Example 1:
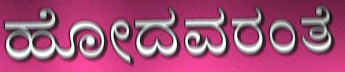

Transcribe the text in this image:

ಹೋದವರಂತೆ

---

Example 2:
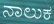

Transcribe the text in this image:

ನಾಲುಕ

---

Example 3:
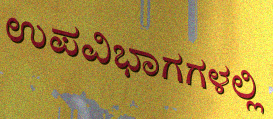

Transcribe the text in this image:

ಉಪವಿಭಾಗಗಳಲ್ಲಿ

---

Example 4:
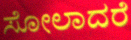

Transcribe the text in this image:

ಸೋಲಾದರೆ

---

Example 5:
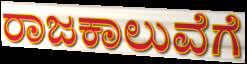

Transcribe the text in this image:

ರಾಜಕಾಲುವೆಗೆ